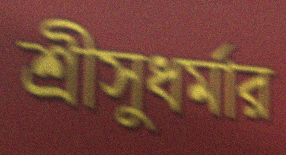
শ্রীসুধর্মার